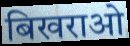
बिखराओ